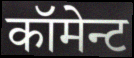
कॉमेन्ट